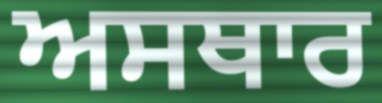
ਅਸਥਾਰ